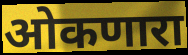
ओकणारा